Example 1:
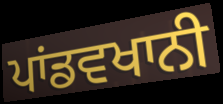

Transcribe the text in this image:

ਪਾਂਡਵਖਾਨੀ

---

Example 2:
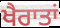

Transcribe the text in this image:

ਖੈਰਾਤਾਂ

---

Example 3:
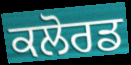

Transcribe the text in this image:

ਕਲੋਰਡ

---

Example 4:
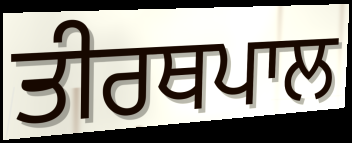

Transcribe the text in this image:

ਤੀਰਥਪਾਲ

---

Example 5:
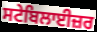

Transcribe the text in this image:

ਸਟੇਬਿਲਾਈਜ਼ਰ